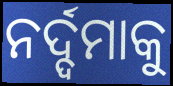
ନର୍ଦ୍ଦମାକୁ